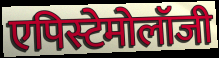
एपिस्टेमोलॉजी